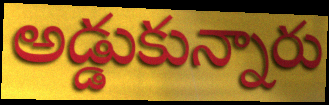
అడ్డుకున్నారు